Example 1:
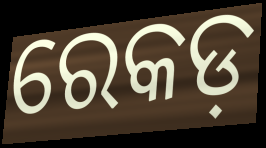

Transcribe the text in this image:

ରେକଡ଼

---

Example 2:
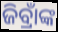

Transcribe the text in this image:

ଜିବ୍ରାଁଙ୍କ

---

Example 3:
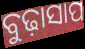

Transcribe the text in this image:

ବୁଢ଼ାସାପ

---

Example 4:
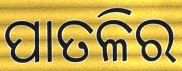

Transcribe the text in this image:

ପାତଳିର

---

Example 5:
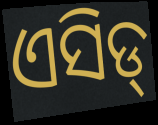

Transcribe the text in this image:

ଏସିଡ୍